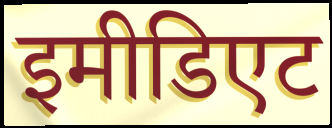
इमीडिएट